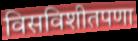
विसविशीतपणा